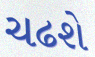
ચઢશે